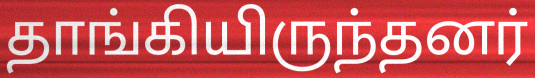
தாங்கியிருந்தனர்